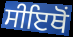
ਸੀਇਥੋਂ